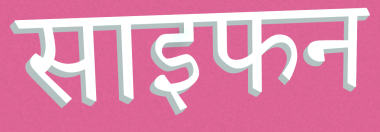
साइफन